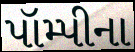
પૉમ્પીના